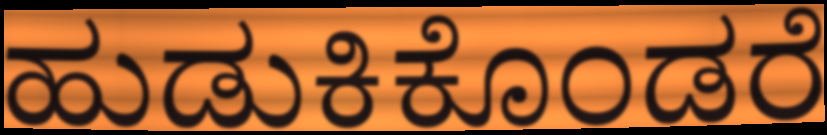
ಹುಡುಕಿಕೊಂಡರೆ